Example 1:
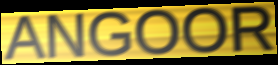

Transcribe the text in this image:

ANGOOR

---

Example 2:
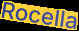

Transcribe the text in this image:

Rocella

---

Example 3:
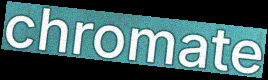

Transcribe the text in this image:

chromate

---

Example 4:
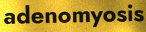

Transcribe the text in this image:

adenomyosis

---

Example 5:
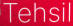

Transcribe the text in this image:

Tehsil